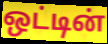
ஒட்டின்